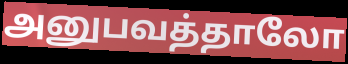
அனுபவத்தாலோ